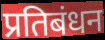
प्रतिबंधन